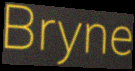
Bryne